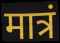
मात्रं